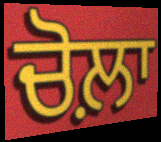
ਚੋਲ਼ਾ